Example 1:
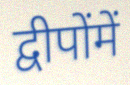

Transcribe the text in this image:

द्वीपोंमें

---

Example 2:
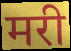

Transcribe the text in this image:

मरी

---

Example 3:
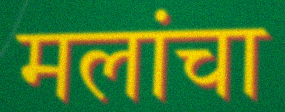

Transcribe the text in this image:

मलांचा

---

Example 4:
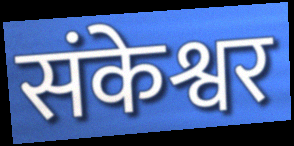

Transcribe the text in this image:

संकेश्वर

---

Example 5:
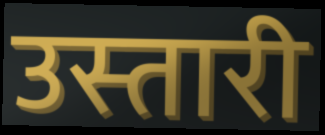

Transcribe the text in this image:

उस्तारी